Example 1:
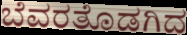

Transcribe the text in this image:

ಬೆವರತೊಡಗಿದ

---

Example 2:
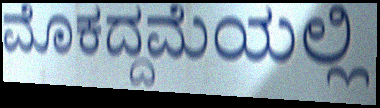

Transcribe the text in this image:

ಮೊಕದ್ದಮೆಯಲ್ಲಿ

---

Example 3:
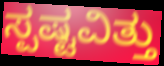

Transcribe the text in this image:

ಸ್ಪಷ್ಟವಿತ್ತು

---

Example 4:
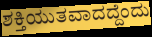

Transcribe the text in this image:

ಶಕ್ತಿಯುತವಾದದ್ದೆಂದು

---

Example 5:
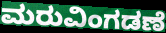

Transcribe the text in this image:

ಮರುವಿಂಗಡಣೆ